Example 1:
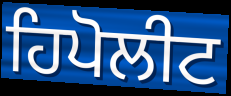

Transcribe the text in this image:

ਹਿਪੋਲੀਟ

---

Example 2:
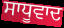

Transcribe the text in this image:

ਸਾਧੂਵਾਦ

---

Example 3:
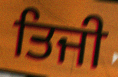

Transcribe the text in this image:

ਤਿਜੀ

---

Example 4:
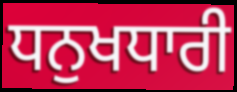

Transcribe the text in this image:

ਧਨੁਖਧਾਰੀ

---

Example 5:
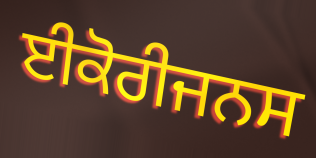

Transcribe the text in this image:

ਈਕੋਰੀਜਨਸ